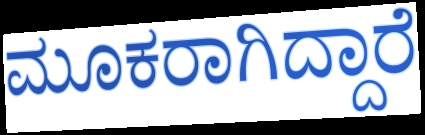
ಮೂಕರಾಗಿದ್ದಾರೆ